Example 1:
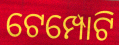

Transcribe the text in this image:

ଟେମ୍ପୋଟି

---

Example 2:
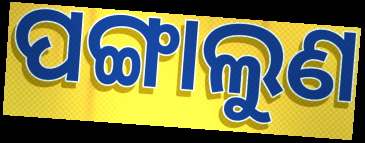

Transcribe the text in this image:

ପଙ୍ଗାଲୁଣ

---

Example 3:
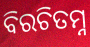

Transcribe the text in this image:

ବିରଚିତମ୍ନ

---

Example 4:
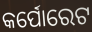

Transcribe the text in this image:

କର୍ପୋରେଟ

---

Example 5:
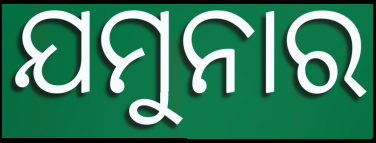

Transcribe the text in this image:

ଯମୁନାର